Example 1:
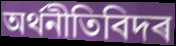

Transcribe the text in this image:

অৰ্থনীতিবিদৰ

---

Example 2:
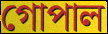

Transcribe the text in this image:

গোপাল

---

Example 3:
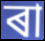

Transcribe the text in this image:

ৰা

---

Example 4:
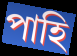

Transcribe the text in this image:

পাহি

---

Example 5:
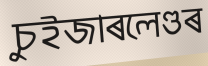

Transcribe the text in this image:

চুইজাৰলেণ্ডৰ